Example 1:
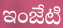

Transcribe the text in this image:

ఇంజేటి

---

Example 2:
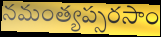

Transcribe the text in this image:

నమంత్యప్సరసాం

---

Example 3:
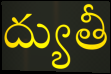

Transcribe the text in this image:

ద్యుతీ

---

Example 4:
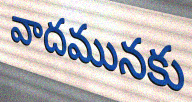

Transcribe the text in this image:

వాదమునకు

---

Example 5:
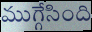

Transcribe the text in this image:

ముగ్గేసింది